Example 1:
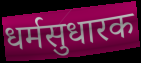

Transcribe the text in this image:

धर्मसुधारक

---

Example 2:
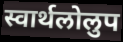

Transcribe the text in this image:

स्वार्थलोलुप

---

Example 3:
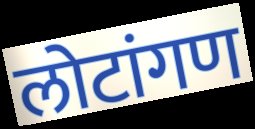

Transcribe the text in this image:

लोटांगण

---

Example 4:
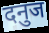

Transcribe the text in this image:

दनुज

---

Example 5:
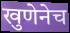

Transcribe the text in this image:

खुणेनेच